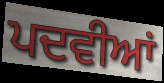
ਪਦਵੀਆਂ